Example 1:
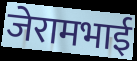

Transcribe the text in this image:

जेरामभाई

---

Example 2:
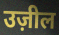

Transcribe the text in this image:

उज़ील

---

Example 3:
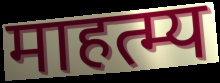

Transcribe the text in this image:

माहत्म्य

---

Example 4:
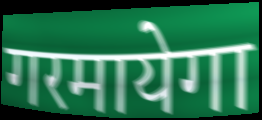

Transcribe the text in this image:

गरमायेगा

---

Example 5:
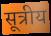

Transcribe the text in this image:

सूत्रीय